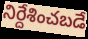
నిర్దేశించబడే